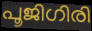
പൂജിഗിരി